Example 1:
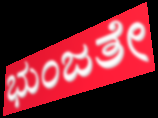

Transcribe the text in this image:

ಭುಂಜತೇ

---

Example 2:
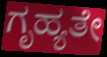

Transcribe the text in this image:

ಗೃಹ್ಯತೇ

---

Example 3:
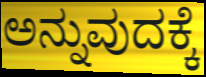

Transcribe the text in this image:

ಅನ್ನುವುದಕ್ಕೆ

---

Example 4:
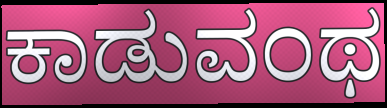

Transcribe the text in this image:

ಕಾಡುವಂಥ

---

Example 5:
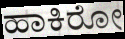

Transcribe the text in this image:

ಹಾಕಿರೋ